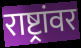
राष्ट्रांवर